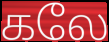
கலே